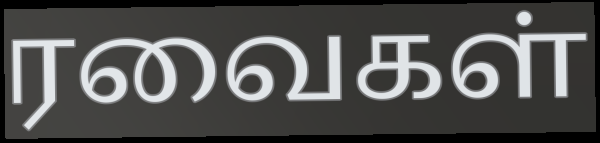
ரவைகள்